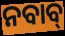
ନବାବ୍